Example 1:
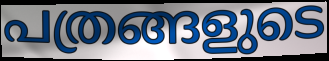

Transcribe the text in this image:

പത്രങ്ങളുടെ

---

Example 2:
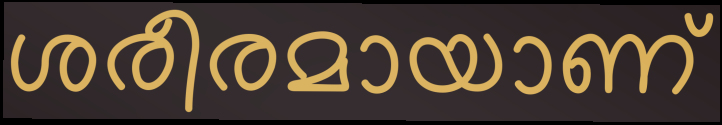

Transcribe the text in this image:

ശരീരമായാണ്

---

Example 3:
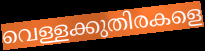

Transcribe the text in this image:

വെള്ളക്കുതിരകളെ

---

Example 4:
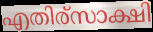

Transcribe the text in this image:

എതിര്സാക്ഷി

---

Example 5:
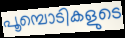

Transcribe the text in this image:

പൂമ്പൊടികളുടെ